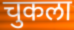
चुकला